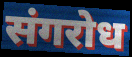
संगरोध